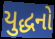
યુદ્ધનો